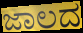
ಜಾಲದ